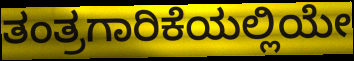
ತಂತ್ರಗಾರಿಕೆಯಲ್ಲಿಯೇ